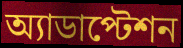
অ্যাডাপ্টেশন